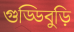
গুড্ডিবুড়ি